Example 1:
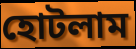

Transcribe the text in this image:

হোটলাম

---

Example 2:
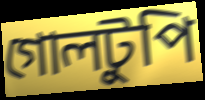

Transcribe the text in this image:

গোলটুপি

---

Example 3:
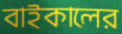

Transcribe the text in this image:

বাইকালের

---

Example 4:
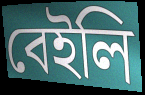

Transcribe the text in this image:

বেইলি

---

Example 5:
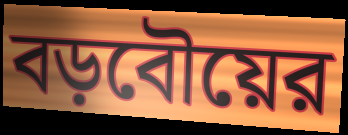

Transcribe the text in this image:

বড়বৌয়ের